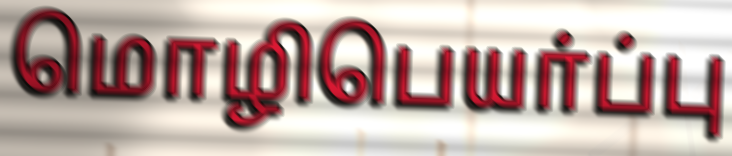
மொழிபெயர்ப்பு